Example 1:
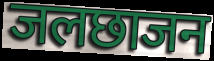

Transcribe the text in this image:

जलछाजन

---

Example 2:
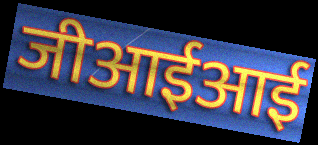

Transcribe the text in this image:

जीआईआई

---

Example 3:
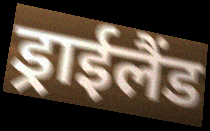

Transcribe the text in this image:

ड्राईलैंड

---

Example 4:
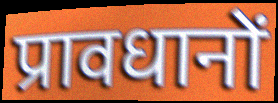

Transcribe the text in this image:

प्रावधानों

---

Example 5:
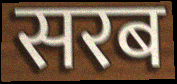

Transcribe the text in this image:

सरब